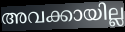
അവക്കായില്ല